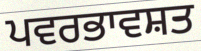
ਪਵਰਭਾਵਸ਼ਤ